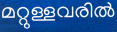
മറ്റുള്ളവരിൽ